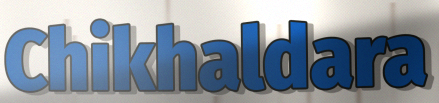
Chikhaldara